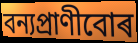
বন্যপ্ৰাণীবোৰ